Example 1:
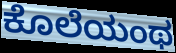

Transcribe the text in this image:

ಕೊಲೆಯಂಥ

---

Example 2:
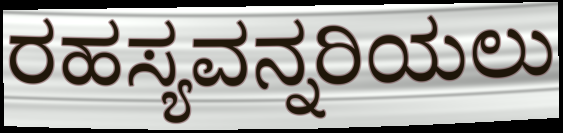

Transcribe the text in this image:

ರಹಸ್ಯವನ್ನರಿಯಲು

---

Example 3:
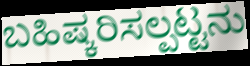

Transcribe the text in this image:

ಬಹಿಷ್ಕರಿಸಲ್ಪಟ್ಟನು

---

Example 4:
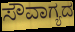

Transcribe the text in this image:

ಸೌವಾಗ್ಯದ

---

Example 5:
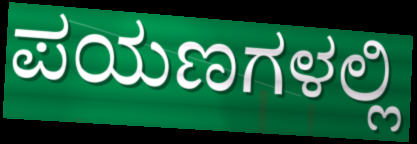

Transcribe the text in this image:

ಪಯಣಗಳಲ್ಲಿ